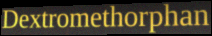
Dextromethorphan